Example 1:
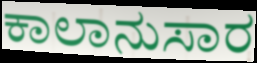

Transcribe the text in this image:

ಕಾಲಾನುಸಾರ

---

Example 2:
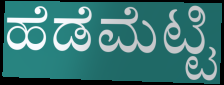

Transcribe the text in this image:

ಹೆಡೆಮೆಟ್ಟಿ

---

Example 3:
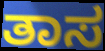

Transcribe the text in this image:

ತಾಸ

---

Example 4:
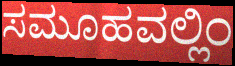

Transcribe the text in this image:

ಸಮೂಹವಲ್ಲಿಂ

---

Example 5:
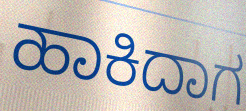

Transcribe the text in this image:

ಹಾಕಿದಾಗ